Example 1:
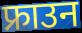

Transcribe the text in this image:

फ्राउन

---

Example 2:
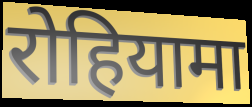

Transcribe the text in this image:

रोहियामा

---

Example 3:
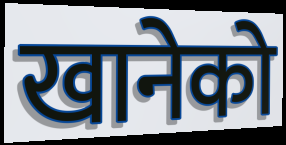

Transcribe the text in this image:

खानेको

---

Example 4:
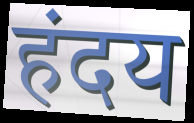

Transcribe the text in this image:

हंदय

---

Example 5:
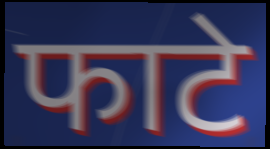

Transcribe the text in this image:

फाटे